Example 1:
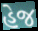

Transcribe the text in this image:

હેજ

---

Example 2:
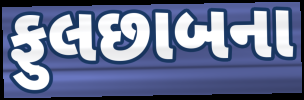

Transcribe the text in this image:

ફુલછાબના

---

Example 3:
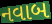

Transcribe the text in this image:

નવાબ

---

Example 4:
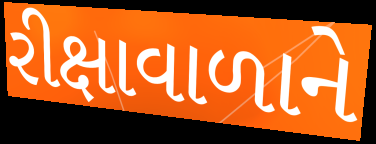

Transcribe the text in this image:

રીક્ષાવાળાને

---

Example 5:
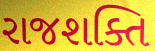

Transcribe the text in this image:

રાજશક્તિ